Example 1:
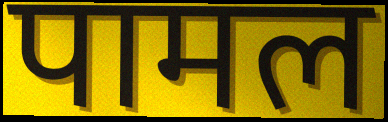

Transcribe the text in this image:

पामल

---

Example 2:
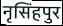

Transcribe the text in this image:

नृसिंहपुर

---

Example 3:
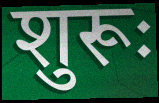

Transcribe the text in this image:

शुरूः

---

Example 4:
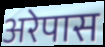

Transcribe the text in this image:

अरेपास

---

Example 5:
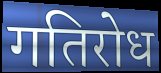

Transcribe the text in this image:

गतिरोध